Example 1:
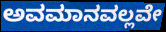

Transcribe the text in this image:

ಅವಮಾನವಲ್ಲವೇ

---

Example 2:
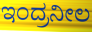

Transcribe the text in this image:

ಇಂದ್ರನೀಲ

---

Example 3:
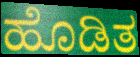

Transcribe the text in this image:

ಹೊಡಿತ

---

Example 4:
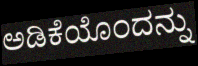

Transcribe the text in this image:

ಅಡಿಕೆಯೊಂದನ್ನು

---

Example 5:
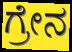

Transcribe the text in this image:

ಗ್ರೇನ